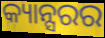
କ୍ୟାନ୍ସରର